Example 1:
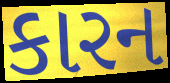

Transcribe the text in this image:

કારન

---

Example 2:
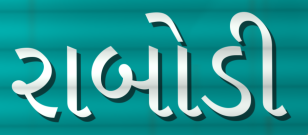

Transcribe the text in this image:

રાબોડી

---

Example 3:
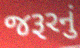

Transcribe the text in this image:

જરૂરનું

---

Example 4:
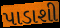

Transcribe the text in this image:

પાડાશી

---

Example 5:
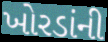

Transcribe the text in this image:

ખોરડાંની